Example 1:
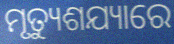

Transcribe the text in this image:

ମୃତ୍ୟୁଶଯ୍ୟାରେ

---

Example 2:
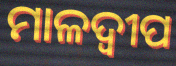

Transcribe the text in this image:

ମାଳଦ୍ଵୀପ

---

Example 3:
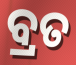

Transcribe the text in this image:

ବ୍ରତ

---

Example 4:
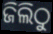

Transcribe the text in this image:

ଜିଲିଠୁ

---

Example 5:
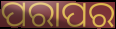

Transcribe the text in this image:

ପରାପର